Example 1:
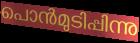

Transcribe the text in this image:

പൊൻമുടിപ്പിന്നു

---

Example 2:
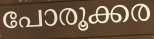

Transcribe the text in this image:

പോരൂക്കര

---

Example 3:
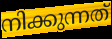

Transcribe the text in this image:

നിക്കുന്നത്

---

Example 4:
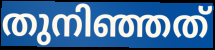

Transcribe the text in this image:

തുനിഞ്ഞത്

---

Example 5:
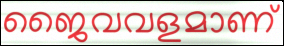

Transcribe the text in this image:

ജൈവവളമാണ്